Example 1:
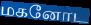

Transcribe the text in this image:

மகனோட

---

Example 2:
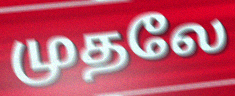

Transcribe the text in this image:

முதலே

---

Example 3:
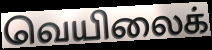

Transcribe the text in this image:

வெயிலைக்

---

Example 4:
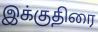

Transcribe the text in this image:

இக்குதிரை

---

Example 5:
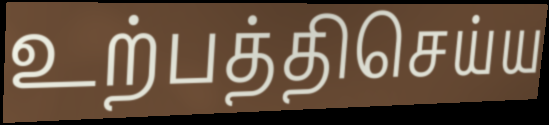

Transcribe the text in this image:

உற்பத்திசெய்ய